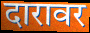
दारावर